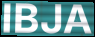
IBJA